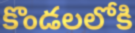
కొండలలోకి